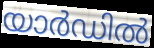
യാർഡിൽ